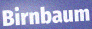
Birnbaum